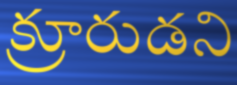
క్రూరుడని